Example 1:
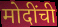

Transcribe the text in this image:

मोदींची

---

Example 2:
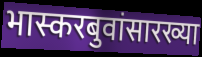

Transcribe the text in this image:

भास्करबुवांसारख्या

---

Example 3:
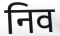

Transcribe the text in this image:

निव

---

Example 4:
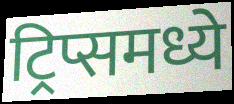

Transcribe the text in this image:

ट्रिप्समध्ये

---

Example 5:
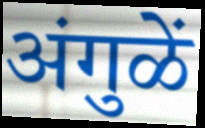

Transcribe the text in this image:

अंगुळें